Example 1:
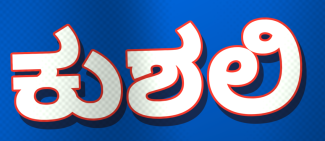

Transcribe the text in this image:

ಕುಶಲಿ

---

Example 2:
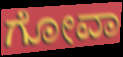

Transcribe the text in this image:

ಗೋವಾ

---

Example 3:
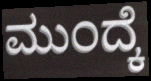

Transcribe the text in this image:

ಮುಂದ್ಕೆ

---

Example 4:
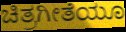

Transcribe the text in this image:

ಚಿತ್ರಗೀತೆಯೂ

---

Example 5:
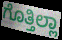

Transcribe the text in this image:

ಗೊತ್ತಿಲ್ಲಾ